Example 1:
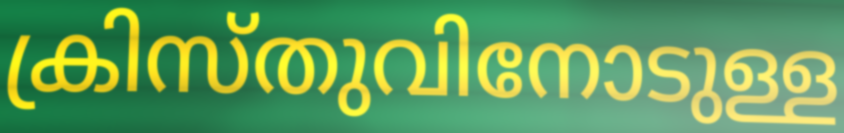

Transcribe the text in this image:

ക്രിസ്തുവിനോടുള്ള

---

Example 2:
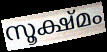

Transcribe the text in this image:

സൂക്ഷ്‌മം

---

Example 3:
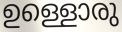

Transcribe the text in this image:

ഉള്ളൊരു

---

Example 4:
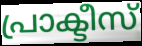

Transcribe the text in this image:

പ്രാക്ടീസ്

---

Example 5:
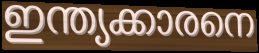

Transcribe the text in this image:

ഇന്ത്യക്കാരനെ